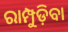
ରାମ୍ପୁଡ଼ିବା